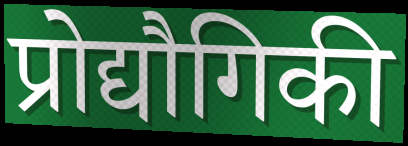
प्रोद्यौगिकी